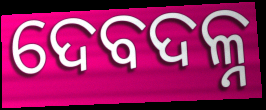
ଦେବଦଳ୍ନ